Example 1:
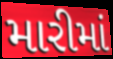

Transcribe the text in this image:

મારીમાં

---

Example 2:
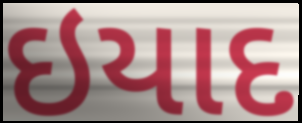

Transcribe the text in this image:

ઇયાદ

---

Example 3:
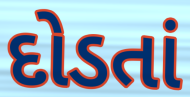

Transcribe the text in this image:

દોડતાં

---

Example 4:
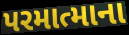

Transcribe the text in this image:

પરમાત્માના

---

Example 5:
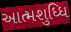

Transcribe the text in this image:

આત્મશુધ્ધિ